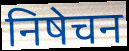
निषेचन